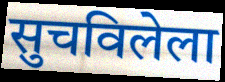
सुचविलेला